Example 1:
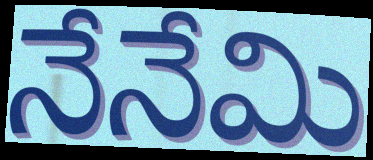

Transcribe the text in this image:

నేనేమి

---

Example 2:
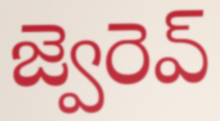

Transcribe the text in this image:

జ్వెరెవ్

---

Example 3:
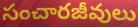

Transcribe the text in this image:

సంచారజీవులు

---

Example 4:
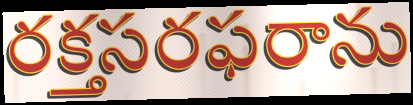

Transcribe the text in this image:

రక్తసరఫరాను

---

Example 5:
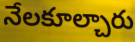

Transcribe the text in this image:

నేలకూల్చారు